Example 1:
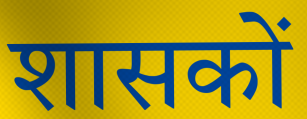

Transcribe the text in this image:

शासकों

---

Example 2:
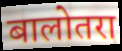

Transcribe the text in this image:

बालोतरा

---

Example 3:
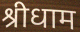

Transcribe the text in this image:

श्रीधाम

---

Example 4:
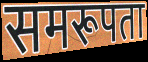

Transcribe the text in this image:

समरूपता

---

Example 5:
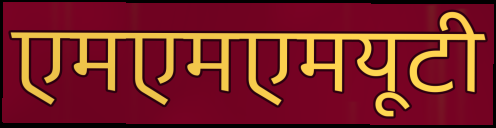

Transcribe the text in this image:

एमएमएमयूटी